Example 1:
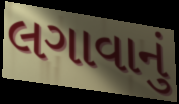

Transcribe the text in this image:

લગાવાનું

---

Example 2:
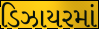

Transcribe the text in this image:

ડિઝાયરમાં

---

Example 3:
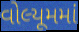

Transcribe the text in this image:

વોલ્યૂમમાં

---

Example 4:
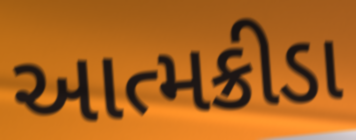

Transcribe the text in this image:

આત્મક્રીડા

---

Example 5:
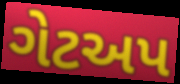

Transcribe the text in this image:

ગેટઅપ